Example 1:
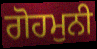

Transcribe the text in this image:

ਗੋਹਮੁਨੀ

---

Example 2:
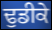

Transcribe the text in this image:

ਢੁਡੀਕੇ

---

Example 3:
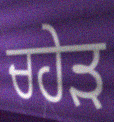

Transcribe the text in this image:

ਚਹੇੜ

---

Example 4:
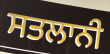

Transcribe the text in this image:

ਸਤਲਾਨੀ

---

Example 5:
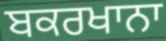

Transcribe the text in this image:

ਬਕਰਖਾਨਾ